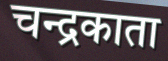
चन्द्रकाता